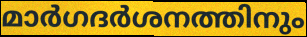
മാർഗദർശനത്തിനും